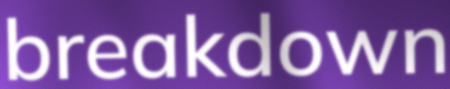
breakdown